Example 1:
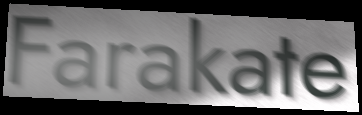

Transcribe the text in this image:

Farakate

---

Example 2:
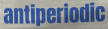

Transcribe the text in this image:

antiperiodic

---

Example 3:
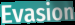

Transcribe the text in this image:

Evasion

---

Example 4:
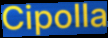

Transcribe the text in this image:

Cipolla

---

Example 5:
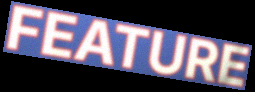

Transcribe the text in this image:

FEATURE